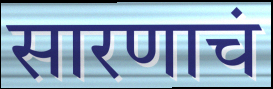
सारणाचं